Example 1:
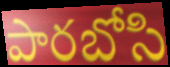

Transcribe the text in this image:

పారబోసి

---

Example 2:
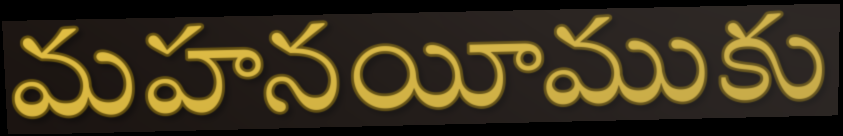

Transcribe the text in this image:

మహనయీముకు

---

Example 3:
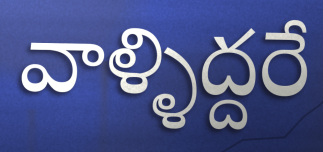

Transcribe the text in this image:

వాళ్ళిద్దరే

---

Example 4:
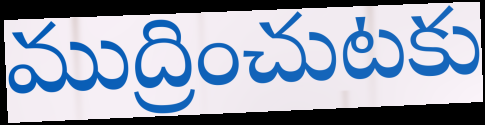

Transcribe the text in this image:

ముద్రించుటకు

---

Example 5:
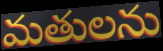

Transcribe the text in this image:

మతులను